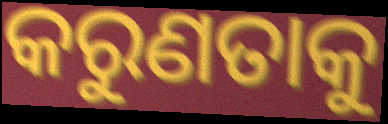
କରୁଣତାକୁ